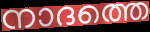
നാദത്തെ